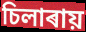
চিলাৰায়